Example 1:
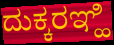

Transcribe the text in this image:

ದುಕ್ಕರಞ್ಹಿ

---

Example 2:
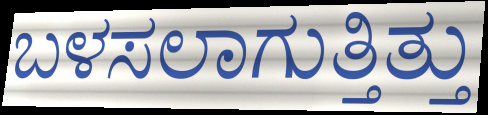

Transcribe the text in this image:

ಬಳಸಲಾಗುತ್ತಿತ್ತು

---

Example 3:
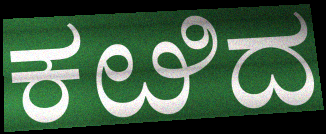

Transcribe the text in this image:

ಕೞಿದ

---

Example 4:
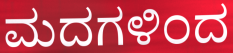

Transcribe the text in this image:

ಮದಗಳಿಂದ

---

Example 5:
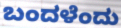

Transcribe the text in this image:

ಬಂದಳೆಂದು